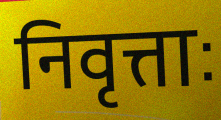
निवृत्ताः